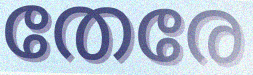
തേരേ